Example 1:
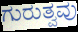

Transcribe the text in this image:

ಗುರುತ್ವವು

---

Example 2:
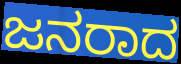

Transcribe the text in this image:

ಜನರಾದ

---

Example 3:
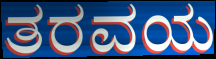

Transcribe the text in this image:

ತರವಯ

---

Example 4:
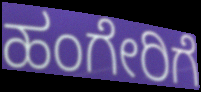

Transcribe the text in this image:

ಹಂಗೇರಿಗೆ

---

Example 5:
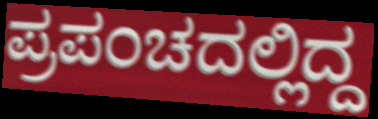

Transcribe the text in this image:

ಪ್ರಪಂಚದಲ್ಲಿದ್ದ